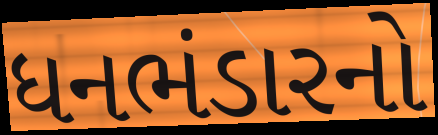
ધનભંડારનો